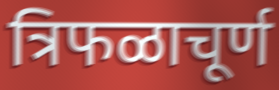
त्रिफळाचूर्ण